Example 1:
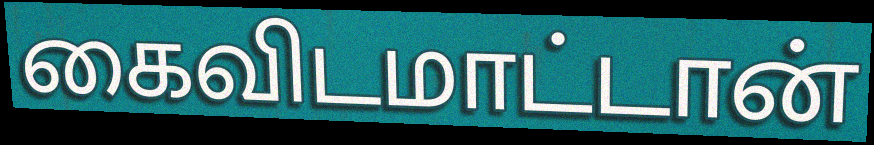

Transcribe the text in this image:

கைவிடமாட்டான்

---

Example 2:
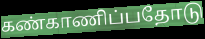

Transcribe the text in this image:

கண்காணிப்பதோடு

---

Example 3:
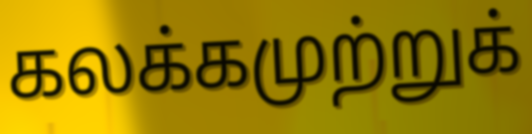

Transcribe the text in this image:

கலக்கமுற்றுக்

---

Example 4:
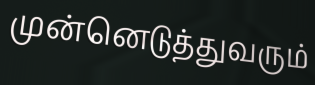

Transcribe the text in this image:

முன்னெடுத்துவரும்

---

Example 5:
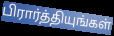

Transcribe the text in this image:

பிரார்த்தியுங்கள்